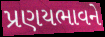
પ્રણયભાવને